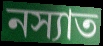
নস্যাত